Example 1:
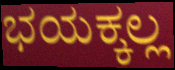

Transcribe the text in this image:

ಭಯಕ್ಕಲ್ಲ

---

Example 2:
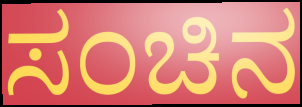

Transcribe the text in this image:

ಸಂಚಿನ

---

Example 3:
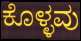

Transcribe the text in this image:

ಕೊಳ್ಳವು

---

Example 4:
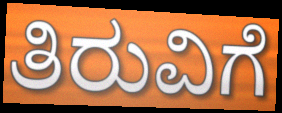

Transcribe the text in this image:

ತಿರುವಿಗೆ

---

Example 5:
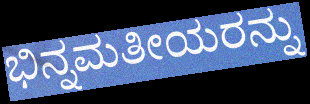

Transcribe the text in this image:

ಭಿನ್ನಮತೀಯರನ್ನು